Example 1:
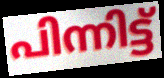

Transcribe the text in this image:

പിന്നിട്ട്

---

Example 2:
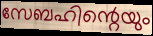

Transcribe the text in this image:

സേബഹിന്റെയും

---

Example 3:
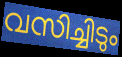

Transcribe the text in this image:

വസിച്ചിടും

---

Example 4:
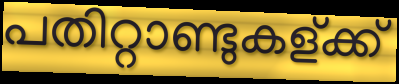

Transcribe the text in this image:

പതിറ്റാണ്ടുകള്ക്ക്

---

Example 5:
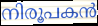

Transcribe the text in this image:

നിരൂപകൻ